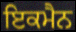
ਇਕਮੈਨ